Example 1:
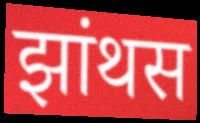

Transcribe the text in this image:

झांथस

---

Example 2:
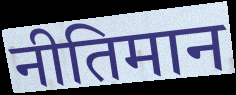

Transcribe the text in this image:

नीतिमान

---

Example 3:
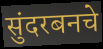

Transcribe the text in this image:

सुंदरबनचे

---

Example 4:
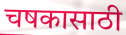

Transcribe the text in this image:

चषकासाठी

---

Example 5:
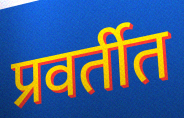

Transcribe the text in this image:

प्रवर्तीत